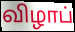
விழாப்